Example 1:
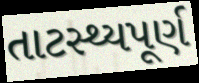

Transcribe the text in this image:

તાટસ્થ્યપૂર્ણ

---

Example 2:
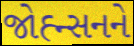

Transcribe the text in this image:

જોહ્ન્સનને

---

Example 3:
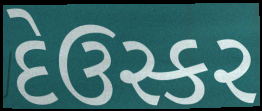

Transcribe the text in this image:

દેઉસ્કર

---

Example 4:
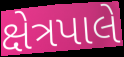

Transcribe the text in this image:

ક્ષેત્રપાલે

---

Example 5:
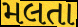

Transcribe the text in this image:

મલતા